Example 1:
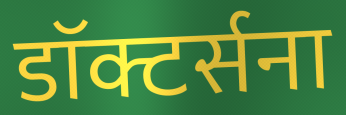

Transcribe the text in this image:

डॉक्टर्सना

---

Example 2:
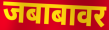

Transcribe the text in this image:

जबाबावर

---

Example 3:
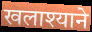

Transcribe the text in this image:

खलाश्याने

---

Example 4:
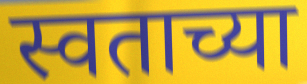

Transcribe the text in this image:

स्वताच्या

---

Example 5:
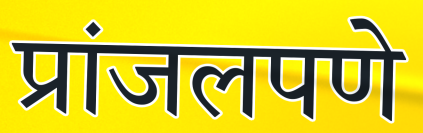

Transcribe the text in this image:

प्रांजलपणे